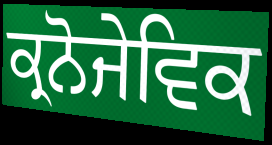
ਕ੍ਰਨੋਜੇਵਿਕ